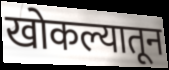
खोकल्यातून